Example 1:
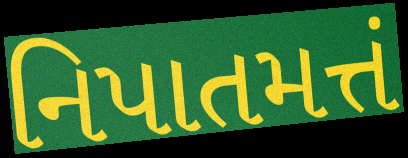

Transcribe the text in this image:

નિપાતમત્તં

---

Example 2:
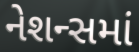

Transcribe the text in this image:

નેશન્સમાં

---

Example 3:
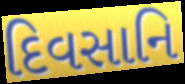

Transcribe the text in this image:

દિવસાનિ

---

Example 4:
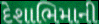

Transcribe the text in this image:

દેશાભિમાની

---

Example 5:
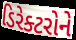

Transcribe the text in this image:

ડિરેક્ટરોને